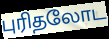
புரிதலோட